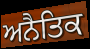
ਅਨੈਤਿਕ